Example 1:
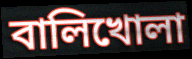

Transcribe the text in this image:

বালিখোলা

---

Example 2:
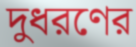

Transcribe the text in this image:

দুধরণের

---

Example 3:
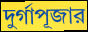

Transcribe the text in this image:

দুর্গাপূজার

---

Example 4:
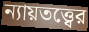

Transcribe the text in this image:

ন্যায়তত্ত্বের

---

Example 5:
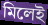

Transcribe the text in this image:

মিলেই